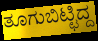
ತೂಗುಬಿಟ್ಟಿದ್ದ